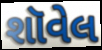
શૉવેલ